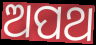
ଅପଥ